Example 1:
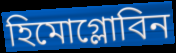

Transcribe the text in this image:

হিমোগ্লোবিন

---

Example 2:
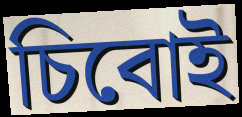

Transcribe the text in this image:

চিবোই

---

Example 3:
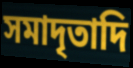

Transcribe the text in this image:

সমাদৃতাদি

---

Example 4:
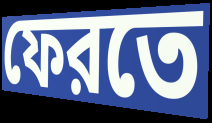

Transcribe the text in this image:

ফেরতে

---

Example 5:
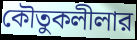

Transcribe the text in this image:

কৌতুকলীলার